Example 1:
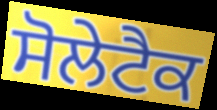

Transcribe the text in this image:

ਸੋਲੇਟੈਕ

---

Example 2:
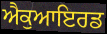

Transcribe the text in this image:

ਐਕੁਆਇਰਡ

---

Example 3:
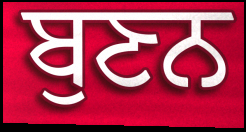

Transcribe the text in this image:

ਬੁਣਨ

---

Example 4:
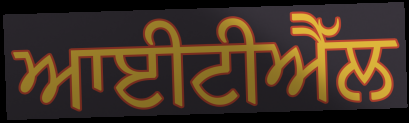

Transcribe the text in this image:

ਆਈਟੀਐੱਲ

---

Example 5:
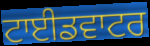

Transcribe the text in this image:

ਟਾਈਡਵਾਟਰ